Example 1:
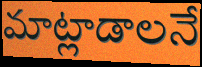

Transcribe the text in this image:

మాట్లాడాలనే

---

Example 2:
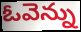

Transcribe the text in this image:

ఓవెన్ను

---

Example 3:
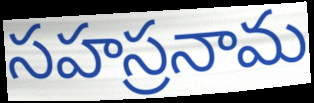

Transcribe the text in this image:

సహస్రనామ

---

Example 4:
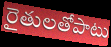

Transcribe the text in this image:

రైతులతోపాటు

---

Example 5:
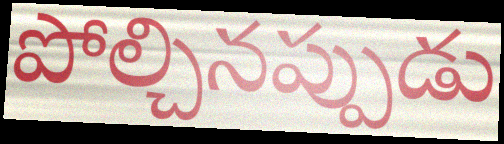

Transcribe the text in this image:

పోల్చినప్పుడు